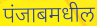
पंजाबमधील